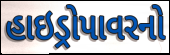
હાઇડ્રોપાવરનો